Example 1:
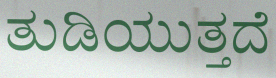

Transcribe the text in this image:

ತುಡಿಯುತ್ತದೆ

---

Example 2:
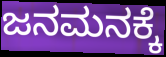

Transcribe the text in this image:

ಜನಮನಕ್ಕೆ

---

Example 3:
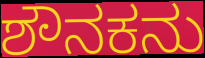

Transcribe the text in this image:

ಶೌನಕನು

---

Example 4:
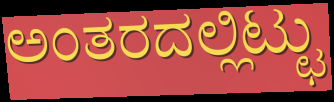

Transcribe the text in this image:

ಅಂತರದಲ್ಲಿಟ್ಟು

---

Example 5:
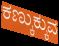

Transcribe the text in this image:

ಕಣ್ಕುಕ್ಕುವ